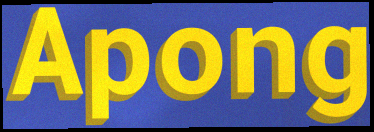
Apong